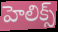
హెలిక్స్